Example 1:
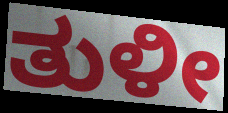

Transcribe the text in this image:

ತುಳೀ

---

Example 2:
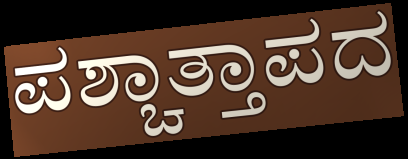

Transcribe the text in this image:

ಪಶ್ಚಾತ್ತಾಪದ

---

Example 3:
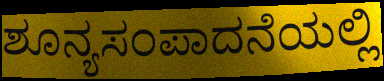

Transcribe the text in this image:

ಶೂನ್ಯಸಂಪಾದನೆಯಲ್ಲಿ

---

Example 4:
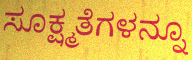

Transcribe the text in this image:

ಸೂಕ್ಷ್ಮತೆಗಳನ್ನೂ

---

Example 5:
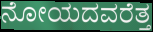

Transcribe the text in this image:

ನೋಯದವರೆತ್ತ